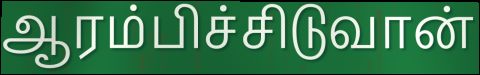
ஆரம்பிச்சிடுவான்